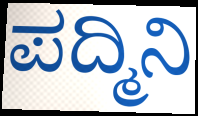
ಪದ್ಮಿನಿ